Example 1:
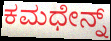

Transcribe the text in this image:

ಕಮಧೇನ್ನ್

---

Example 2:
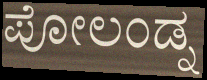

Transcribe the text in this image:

ಪೋಲಂಡ್ನ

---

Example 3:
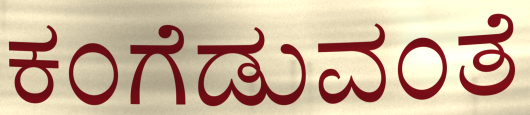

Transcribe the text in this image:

ಕಂಗೆಡುವಂತೆ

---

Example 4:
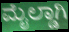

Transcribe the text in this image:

ಮೈಲ್ಡಾಗಿ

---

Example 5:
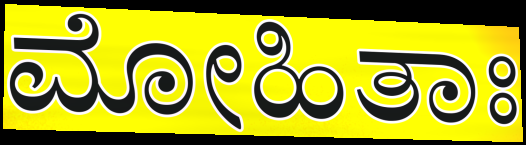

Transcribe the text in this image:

ಮೋಹಿತಾಃ